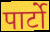
पार्टो